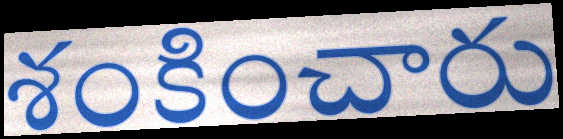
శంకించారు